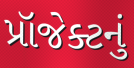
પ્રૉજેક્ટનું